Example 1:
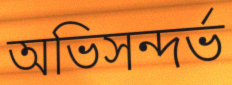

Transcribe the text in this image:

অভিসন্দর্ভ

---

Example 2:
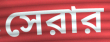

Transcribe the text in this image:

সেরার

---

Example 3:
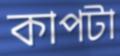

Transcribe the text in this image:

কাপটা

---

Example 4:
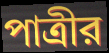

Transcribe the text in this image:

পাত্রীর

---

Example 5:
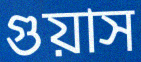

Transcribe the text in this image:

গুয়াস